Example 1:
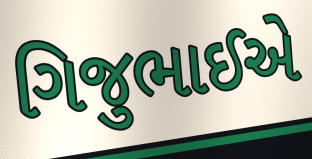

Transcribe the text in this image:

ગિજુભાઈએ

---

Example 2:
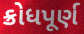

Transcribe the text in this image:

ક્રોધપૂર્ણ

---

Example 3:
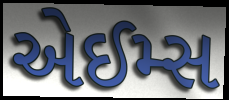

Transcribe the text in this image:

એઈમ્સ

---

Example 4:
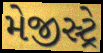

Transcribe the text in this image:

મેજીસ્ર્ટ્રે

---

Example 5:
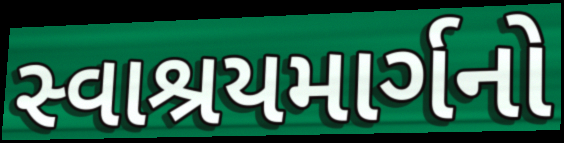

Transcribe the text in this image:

સ્વાશ્રયમાર્ગનો